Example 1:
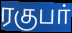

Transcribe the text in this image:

ரகுபர்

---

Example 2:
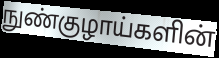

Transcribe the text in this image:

நுண்குழாய்களின்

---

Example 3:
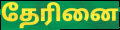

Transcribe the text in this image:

தேரினை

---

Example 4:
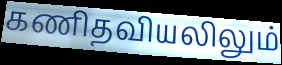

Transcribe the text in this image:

கணிதவியலிலும்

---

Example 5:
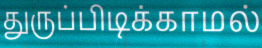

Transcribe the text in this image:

துருப்பிடிக்காமல்